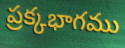
ప్రక్కభాగము